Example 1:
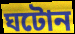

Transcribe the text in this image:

ঘটোন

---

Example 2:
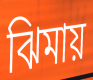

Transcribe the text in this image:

ঝিমায়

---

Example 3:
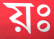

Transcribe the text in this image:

য়ঃ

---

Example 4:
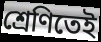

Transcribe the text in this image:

শ্রেণিতেই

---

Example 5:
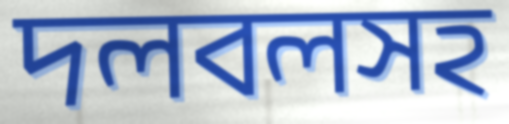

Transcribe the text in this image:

দলবলসহ